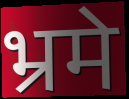
भ्रमे